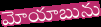
మోయాబును